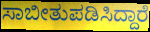
ಸಾಬೀತುಪಡಿಸಿದ್ದಾರೆ